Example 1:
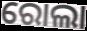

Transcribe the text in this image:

ରୋଲା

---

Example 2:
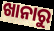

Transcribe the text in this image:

ଖାନାରୁ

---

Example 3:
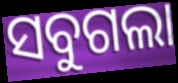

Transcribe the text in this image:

ସବୁଗଲା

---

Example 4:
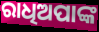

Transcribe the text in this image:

ରାଧିଅପାଙ୍କ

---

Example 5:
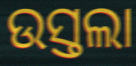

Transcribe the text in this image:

ଉସ୍ତଲା